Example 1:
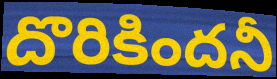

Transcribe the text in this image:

దొరికిందనీ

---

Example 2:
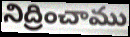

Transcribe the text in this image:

నిద్రించాము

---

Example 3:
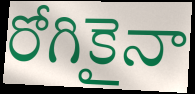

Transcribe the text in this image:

రోగికైనా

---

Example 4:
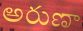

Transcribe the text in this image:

అరుణా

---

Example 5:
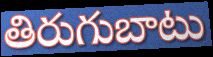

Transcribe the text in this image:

తిరుగుబాటు